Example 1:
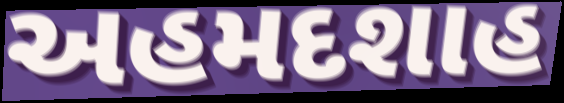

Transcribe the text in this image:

અહમદશાહ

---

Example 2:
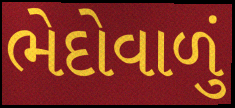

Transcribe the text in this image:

ભેદોવાળું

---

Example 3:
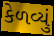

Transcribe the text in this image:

કેળવ્યું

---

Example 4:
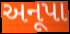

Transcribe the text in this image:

અનૂપા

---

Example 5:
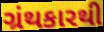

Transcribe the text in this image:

ગ્રંથકારથી